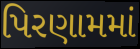
પિરણામમાં